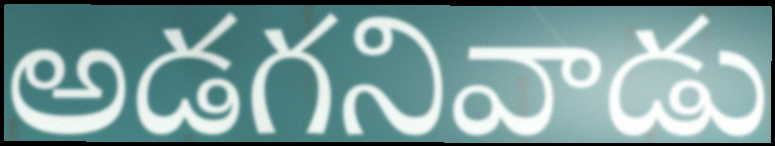
అడగనివాడు